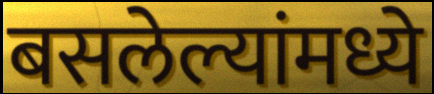
बसलेल्यांमध्ये